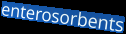
enterosorbents